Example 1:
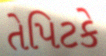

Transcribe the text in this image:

તેપિટકે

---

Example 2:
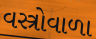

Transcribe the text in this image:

વસ્ત્રોવાળા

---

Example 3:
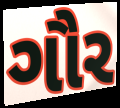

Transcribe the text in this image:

ગૌર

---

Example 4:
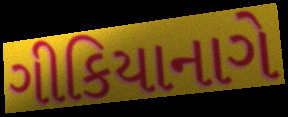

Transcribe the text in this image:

ગીકિયાનાગે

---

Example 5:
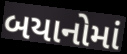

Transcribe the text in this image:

બયાનોમાં